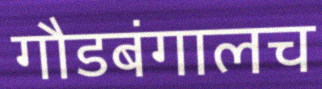
गौडबंगालच